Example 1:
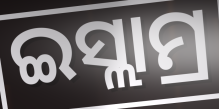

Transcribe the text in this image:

ଇସ୍ଲାମ୍ର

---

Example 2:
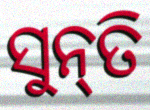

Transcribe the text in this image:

ସୁନ୍‌ତି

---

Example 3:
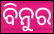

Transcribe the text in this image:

ବିନୁର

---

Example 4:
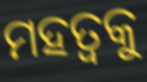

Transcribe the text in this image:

ମହତ୍ଵକୁ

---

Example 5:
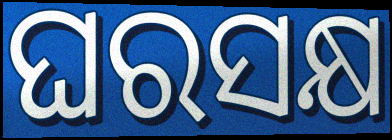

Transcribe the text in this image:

ଘରସକ୍ଷ